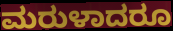
ಮರುಳಾದರೂ